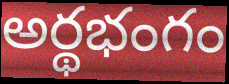
అర్థభంగం